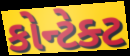
કોન્ટેક્ટ